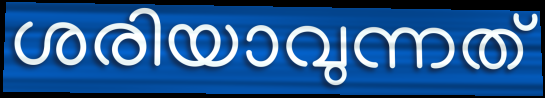
ശരിയാവുന്നത്